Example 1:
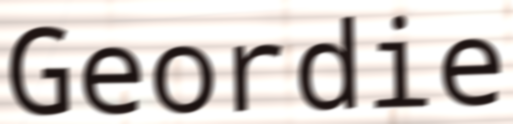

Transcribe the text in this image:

Geordie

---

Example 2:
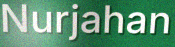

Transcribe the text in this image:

Nurjahan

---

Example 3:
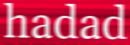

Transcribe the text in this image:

hadad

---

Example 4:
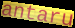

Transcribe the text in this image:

antaru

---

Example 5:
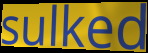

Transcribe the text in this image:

sulked